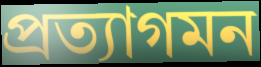
প্রত্যাগমন